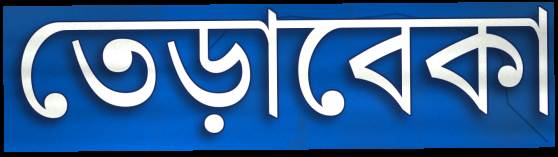
তেড়াবেকা